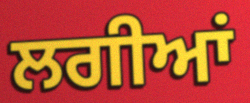
ਲਗੀਆਂ